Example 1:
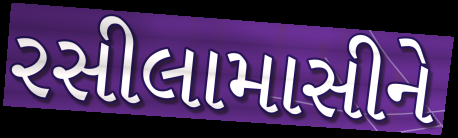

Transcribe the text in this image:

રસીલામાસીને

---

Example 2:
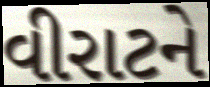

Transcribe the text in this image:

વીરાટને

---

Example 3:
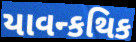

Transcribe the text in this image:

યાવન્કથિક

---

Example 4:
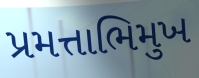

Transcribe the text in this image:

પ્રમત્તાભિમુખ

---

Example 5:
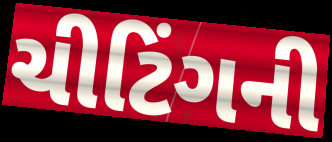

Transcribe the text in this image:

ચીટિંગની